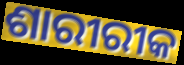
ଶାରୀରୀକ